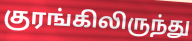
குரங்கிலிருந்து